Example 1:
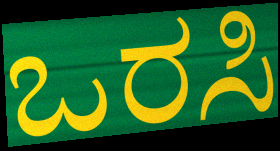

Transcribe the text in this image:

ಒರಸಿ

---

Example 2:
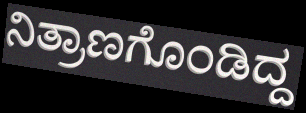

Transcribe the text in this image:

ನಿತ್ರಾಣಗೊಂಡಿದ್ದ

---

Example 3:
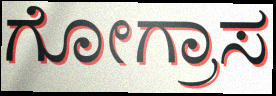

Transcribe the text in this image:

ಗೋಗ್ರಾಸ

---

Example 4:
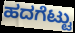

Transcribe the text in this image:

ಹದಗೆಟ್ಟು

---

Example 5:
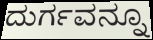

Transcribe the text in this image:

ದುರ್ಗವನ್ನೂ